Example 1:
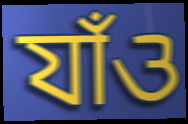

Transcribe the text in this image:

যাঁও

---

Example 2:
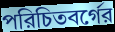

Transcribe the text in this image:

পরিচিতবর্গের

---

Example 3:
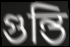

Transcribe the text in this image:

গুন্তি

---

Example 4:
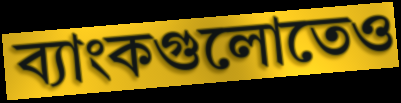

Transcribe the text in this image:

ব্যাংকগুলোতেও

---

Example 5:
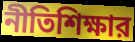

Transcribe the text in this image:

নীতিশিক্ষার